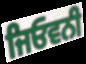
ਜਿਓਵਨੀ